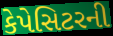
કેપેસિટરની